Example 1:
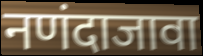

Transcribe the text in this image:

नणंदाजावा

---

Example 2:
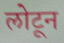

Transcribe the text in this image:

लोटून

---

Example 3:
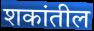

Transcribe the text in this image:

शकांतील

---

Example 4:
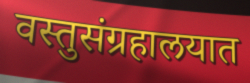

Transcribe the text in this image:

वस्तुसंग्रहालयात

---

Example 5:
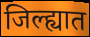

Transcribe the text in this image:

जिल्ह्यात